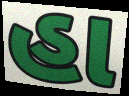
હા